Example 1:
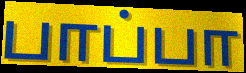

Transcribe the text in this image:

பாப்பா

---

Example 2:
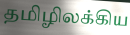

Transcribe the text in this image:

தமிழிலக்கிய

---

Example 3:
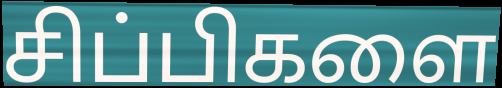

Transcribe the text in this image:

சிப்பிகளை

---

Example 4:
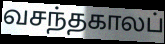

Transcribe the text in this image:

வசந்தகாலப்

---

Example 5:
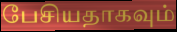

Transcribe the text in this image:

பேசியதாகவும்